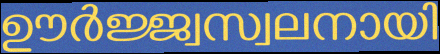
ഊർജ്ജ്വസ്വലനായി